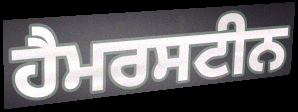
ਹੈਮਰਸਟੀਨ